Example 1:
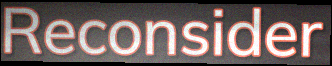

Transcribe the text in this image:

Reconsider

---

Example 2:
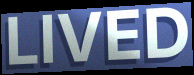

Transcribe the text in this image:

LIVED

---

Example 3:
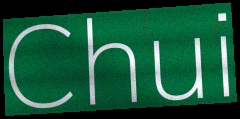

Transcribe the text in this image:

Chui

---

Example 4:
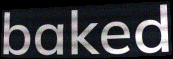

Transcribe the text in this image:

baked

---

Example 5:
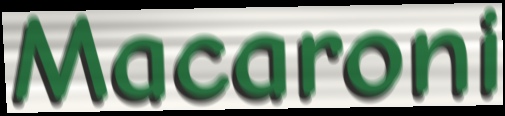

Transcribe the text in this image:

Macaroni